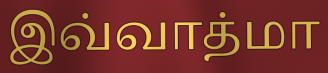
இவ்வாத்மா